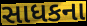
સાધકના